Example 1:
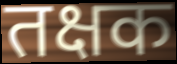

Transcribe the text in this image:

तक्षक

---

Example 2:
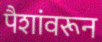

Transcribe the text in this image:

पैशांवरून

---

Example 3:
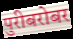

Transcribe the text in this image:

पुरीबरोबर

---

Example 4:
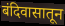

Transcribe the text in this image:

बंदिवासातून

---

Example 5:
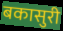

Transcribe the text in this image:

बकासुरी